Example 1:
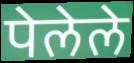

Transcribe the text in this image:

पेलेले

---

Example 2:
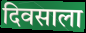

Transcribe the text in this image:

दिवसाला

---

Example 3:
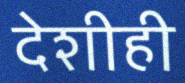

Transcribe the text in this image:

देशीही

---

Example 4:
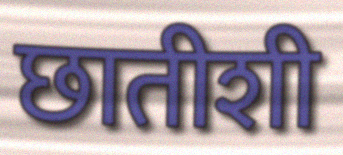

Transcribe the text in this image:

छातीशी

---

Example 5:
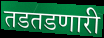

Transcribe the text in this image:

तडतडणारी